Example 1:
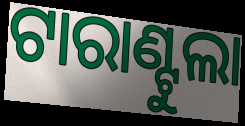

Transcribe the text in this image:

ଟାରାଣ୍ଟୁଲା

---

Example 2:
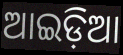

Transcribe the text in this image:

ଆଇଡ଼ିଆ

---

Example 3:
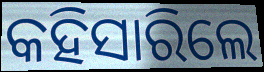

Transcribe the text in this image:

କହିସାରିଲେ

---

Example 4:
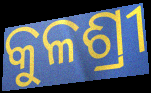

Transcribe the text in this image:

କୁଳଶ୍ରୀ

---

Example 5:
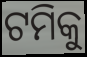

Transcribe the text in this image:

ଟମିକୁ